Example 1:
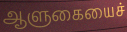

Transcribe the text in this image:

ஆளுகையைச்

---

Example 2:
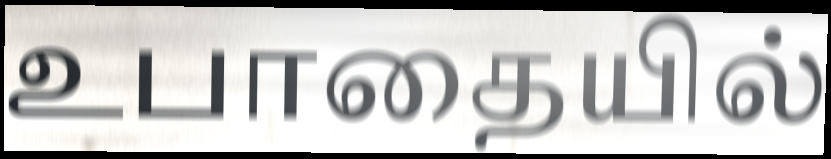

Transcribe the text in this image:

உபாதையில்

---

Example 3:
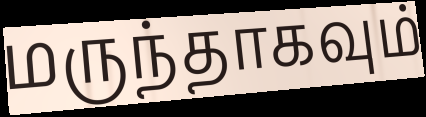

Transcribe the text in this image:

மருந்தாகவும்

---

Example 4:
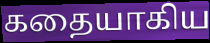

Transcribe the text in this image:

கதையாகிய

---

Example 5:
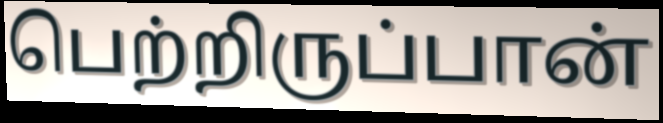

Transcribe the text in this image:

பெற்றிருப்பான்